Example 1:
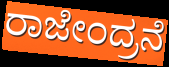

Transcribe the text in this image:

ರಾಜೇಂದ್ರನೆ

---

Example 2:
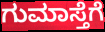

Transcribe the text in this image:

ಗುಮಾಸ್ತೆಗೆ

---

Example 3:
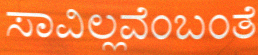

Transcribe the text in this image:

ಸಾವಿಲ್ಲವೆಂಬಂತೆ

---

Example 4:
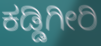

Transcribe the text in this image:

ಕಡ್ಡಿಗೀರಿ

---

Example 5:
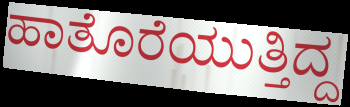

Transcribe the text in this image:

ಹಾತೊರೆಯುತ್ತಿದ್ದ